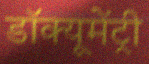
डॉक्‍यूमेंट्री